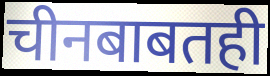
चीनबाबतही